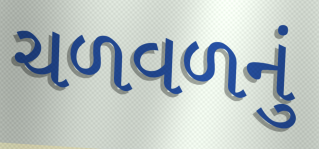
ચળવળનું